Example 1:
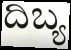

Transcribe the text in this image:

ದಿಬ್ಯ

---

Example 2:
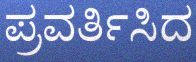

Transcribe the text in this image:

ಪ್ರವರ್ತಿಸಿದ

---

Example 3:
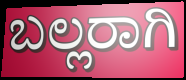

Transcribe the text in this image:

ಬಲ್ಲರಾಗಿ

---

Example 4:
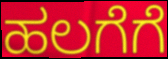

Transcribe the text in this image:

ಹಲಗೆಗೆ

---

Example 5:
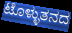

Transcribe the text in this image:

ಟೊಳ್ಳುತನದ